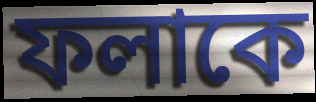
ফলাকে